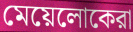
মেয়েলোকেরা